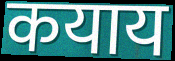
कयाय